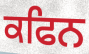
ਕਫਿਨ